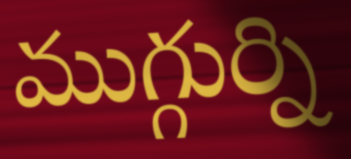
ముగ్గుర్ని